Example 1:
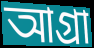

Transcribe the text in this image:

আগ্রা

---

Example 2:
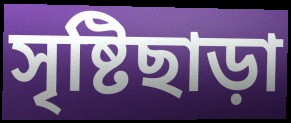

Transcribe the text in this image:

সৃষ্টিছাড়া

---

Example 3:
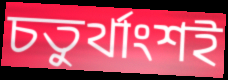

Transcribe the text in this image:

চতুর্থাংশই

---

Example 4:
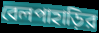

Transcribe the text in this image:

বেলপাহাড়ির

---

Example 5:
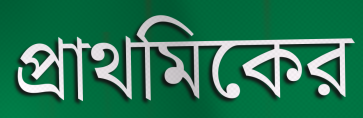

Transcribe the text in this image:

প্রাথমিকের